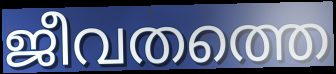
ജീവതത്തെ